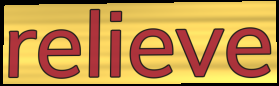
relieve